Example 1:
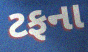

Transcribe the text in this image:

ટફના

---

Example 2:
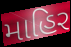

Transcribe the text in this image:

માહિર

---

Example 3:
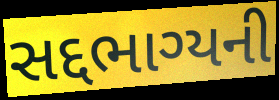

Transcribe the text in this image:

સદ્દભાગ્યની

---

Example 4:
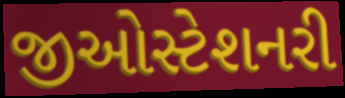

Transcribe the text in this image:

જીઓસ્ટેશનરી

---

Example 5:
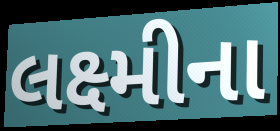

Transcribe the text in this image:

લક્ષ્મીના